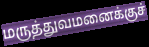
மருத்துவமனைக்குச்